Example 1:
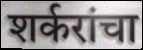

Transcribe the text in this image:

शर्करांचा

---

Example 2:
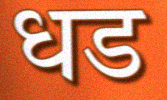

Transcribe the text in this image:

धड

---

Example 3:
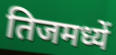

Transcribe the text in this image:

तिजमध्यें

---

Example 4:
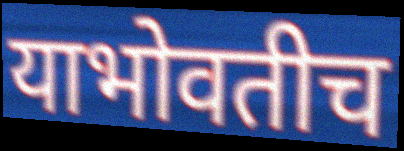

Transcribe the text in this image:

याभोवतीच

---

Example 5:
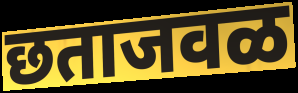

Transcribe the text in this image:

छताजवळ